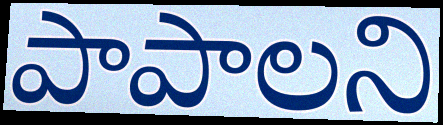
పాపాలని